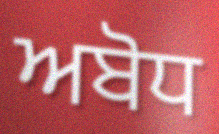
ਅਬੋਧ